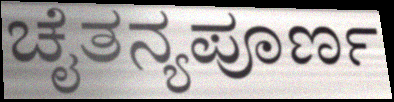
ಚೈತನ್ಯಪೂರ್ಣ